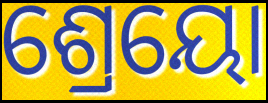
ଶ୍ରେୟୋ